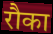
रौका